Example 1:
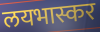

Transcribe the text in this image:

लयभास्कर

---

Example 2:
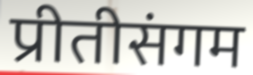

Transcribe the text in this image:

प्रीतीसंगम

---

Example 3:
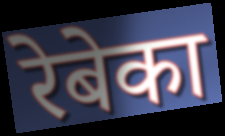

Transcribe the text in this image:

रेबेका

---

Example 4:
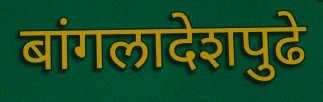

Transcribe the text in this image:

बांगलादेशपुढे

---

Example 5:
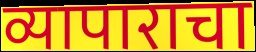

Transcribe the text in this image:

व्यापाराचा